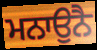
ਮਨਾਉਨੈ